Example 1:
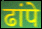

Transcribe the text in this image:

ढांपे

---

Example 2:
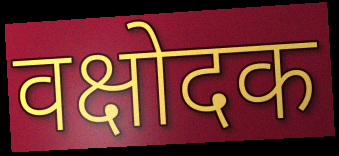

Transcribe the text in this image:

वक्षोदक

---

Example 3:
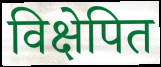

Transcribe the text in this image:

विक्षेपित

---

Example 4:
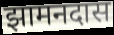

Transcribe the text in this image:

झामनदास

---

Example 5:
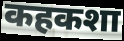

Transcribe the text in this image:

कहकशा